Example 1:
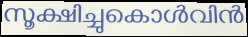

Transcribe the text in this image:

സൂക്ഷിച്ചുകൊൾവിൻ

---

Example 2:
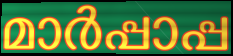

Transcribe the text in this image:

മാർപ്പാപ്പ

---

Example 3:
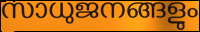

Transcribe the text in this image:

സാധുജനങ്ങളും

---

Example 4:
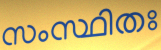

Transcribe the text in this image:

സംസ്ഥിതഃ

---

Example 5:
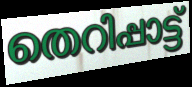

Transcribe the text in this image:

തെറിപ്പാട്ട്